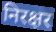
निरक्षर